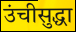
उंचीसुद्धा